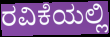
ರವಿಕೆಯಲ್ಲಿ